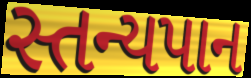
સ્તન્યપાન